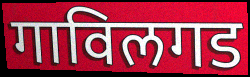
गाविलगड